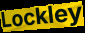
Lockley